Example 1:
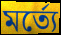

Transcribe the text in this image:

মর্ত্যে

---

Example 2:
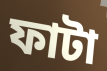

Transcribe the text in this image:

ফাটা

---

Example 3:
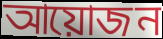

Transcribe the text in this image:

আয়োজন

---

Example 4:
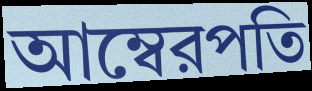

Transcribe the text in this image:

আম্বেরপতি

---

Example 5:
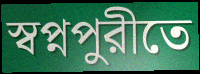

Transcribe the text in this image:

স্বপ্নপুরীতে